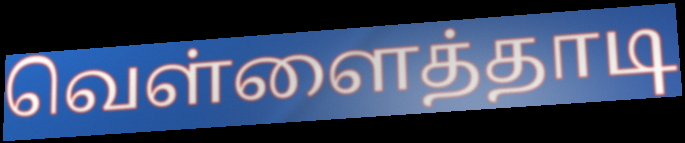
வெள்ளைத்தாடி